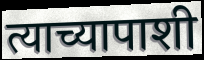
त्याच्यापाशी